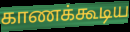
காணக்கூடிய